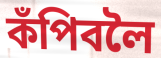
কঁপিবলৈ